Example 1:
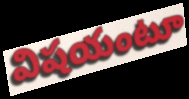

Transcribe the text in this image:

విషయంటూ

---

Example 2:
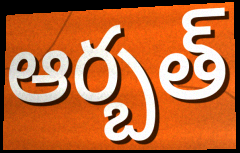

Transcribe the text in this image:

ఆర్బత్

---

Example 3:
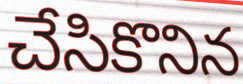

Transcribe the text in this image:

చేసికొనిన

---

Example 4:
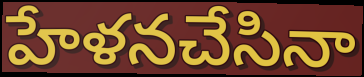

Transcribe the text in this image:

హేళనచేసినా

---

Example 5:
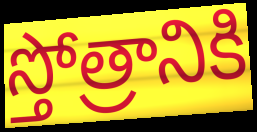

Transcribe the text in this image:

స్తోత్రానికి